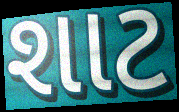
શાટ